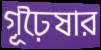
গূঢ়ৈষার